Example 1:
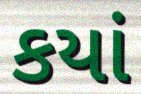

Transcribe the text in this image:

કયાં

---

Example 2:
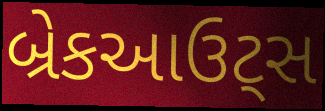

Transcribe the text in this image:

બ્રેકઆઉટ્સ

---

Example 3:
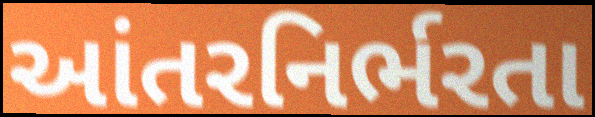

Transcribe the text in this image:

આંતરનિર્ભરતા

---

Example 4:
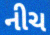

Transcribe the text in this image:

નીચ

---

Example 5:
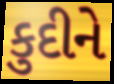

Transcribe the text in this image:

કુદીને